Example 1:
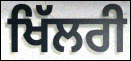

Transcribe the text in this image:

ਖਿੱਲਰੀ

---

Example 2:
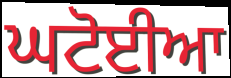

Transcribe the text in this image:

ਘਟੋਈਆ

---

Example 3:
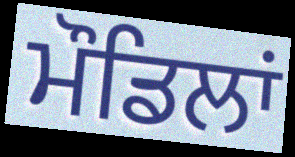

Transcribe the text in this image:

ਮੌਡਿਲਾਂ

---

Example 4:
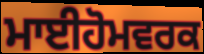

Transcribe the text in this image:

ਮਾਈਹੋਮਵਰਕ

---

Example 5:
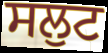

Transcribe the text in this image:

ਸਲੁਟ